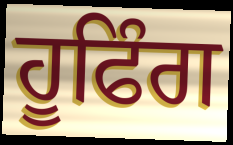
ਹੂਫਿੰਗ